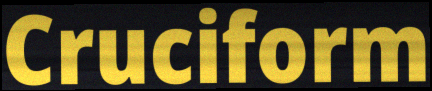
Cruciform